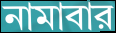
নামাবার